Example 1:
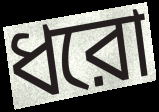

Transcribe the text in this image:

ধরো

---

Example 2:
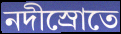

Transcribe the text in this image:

নদীস্রোতে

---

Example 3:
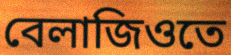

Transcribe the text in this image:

বেলাজিওতে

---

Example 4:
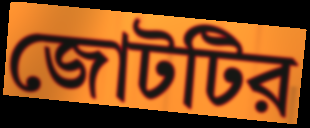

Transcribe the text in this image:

জোটটির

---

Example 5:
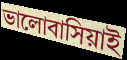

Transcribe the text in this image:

ভালোবাসিয়াই